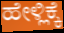
ಹೇಳ್ಲಿಕ್ಕೆ